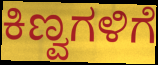
ಕಿಣ್ವಗಳಿಗೆ